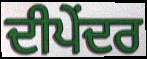
ਦੀਪੇਂਦਰ